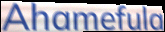
Ahamefula